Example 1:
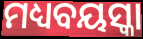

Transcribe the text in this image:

ମଧ୍ୟବୟସ୍କା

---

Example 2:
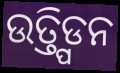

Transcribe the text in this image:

ଉତ୍ତ୍ପିଡନ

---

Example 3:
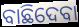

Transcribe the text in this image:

ବାଛିଦେବା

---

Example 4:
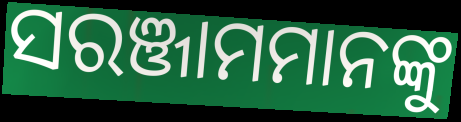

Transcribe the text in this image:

ସରଞ୍ଜାମମାନଙ୍କୁ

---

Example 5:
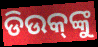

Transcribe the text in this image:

ଡିଉକ୍‌ଙ୍କୁ